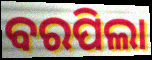
ବରପିଲା